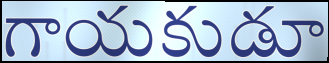
గాయకుడూ